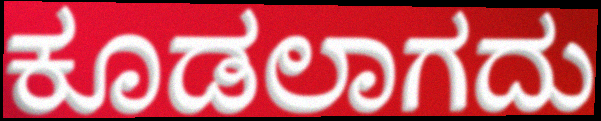
ಕೂಡಲಾಗದು